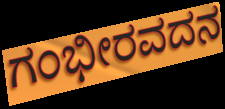
ಗಂಭೀರವದನ